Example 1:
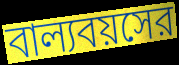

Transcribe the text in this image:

বাল্যবয়সের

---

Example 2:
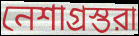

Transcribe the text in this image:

নেশাগ্রস্তরা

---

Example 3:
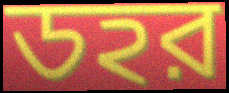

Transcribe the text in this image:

ডহর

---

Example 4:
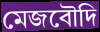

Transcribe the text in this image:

মেজবৌদি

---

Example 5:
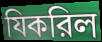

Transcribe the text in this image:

যিকরিল